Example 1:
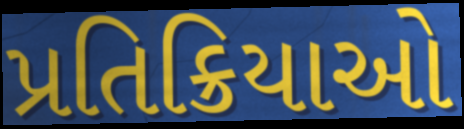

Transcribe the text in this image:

પ્રતિક્રિયાઓ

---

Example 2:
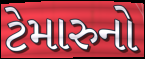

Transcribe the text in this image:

ટેમારુનો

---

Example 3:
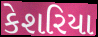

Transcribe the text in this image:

કેશરિયા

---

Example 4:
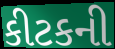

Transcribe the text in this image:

કીટકની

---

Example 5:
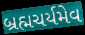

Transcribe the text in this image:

બ્રહ્મચર્યમેવ